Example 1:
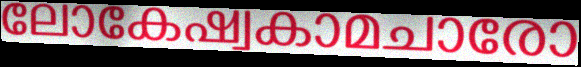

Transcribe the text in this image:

ലോകേഷ്വകാമചാരോ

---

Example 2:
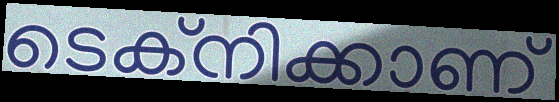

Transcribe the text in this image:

ടെക്നിക്കാണ്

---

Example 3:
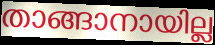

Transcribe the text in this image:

താങ്ങാനായില്ല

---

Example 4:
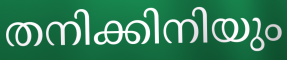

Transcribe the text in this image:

തനിക്കിനിയും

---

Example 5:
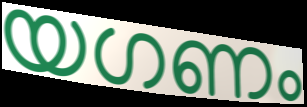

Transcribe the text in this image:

യഗണം